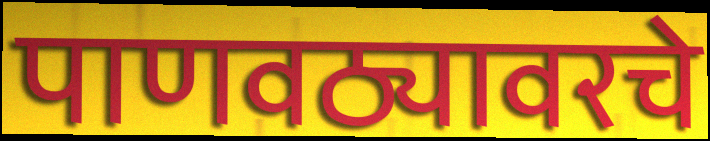
पाणवठ्यावरचे